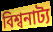
বিশ্বনাট্য